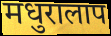
मधुरालाप